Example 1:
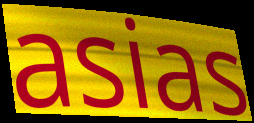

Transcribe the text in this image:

asias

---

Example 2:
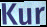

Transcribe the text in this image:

Kur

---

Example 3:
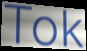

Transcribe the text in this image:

Tok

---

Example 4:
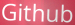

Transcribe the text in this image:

Github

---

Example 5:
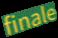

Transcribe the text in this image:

finale